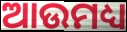
ଆଉମଧ୍ୟ